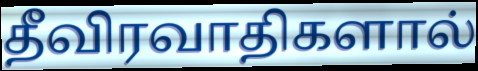
தீவிரவாதிகளால்